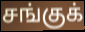
சங்குக்